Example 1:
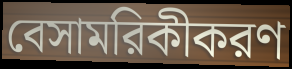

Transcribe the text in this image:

বেসামরিকীকরণ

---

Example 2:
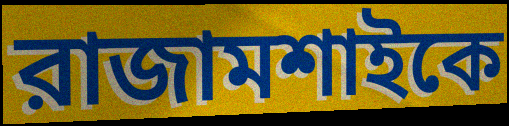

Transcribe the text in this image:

রাজামশাইকে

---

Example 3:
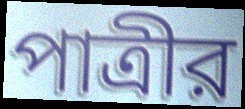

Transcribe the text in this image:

পাত্রীর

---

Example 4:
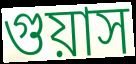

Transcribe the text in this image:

গুয়াস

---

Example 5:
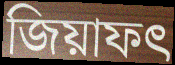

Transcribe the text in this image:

জিয়াফৎ